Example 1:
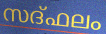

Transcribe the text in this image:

സദ്ഫലം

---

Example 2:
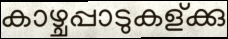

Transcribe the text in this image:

കാഴ്ചപ്പാടുകള്ക്കു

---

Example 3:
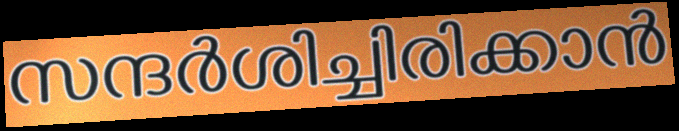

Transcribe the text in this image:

സന്ദർശിച്ചിരിക്കാൻ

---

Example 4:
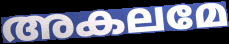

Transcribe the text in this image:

അകലമേ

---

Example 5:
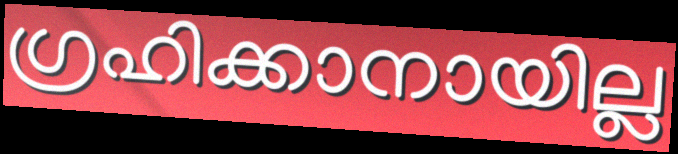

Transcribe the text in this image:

ഗ്രഹിക്കാനായില്ല